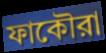
ফাকৌরা